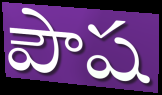
పౌష